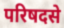
परिषदसे